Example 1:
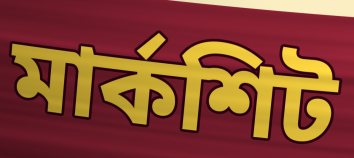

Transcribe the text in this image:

মার্কশিট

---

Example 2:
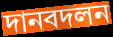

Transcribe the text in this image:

দানবদলন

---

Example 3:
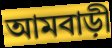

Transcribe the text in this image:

আমবাড়ী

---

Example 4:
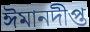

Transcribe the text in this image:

ঈমানদীপ্ত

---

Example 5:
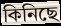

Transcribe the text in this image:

কিনিছে